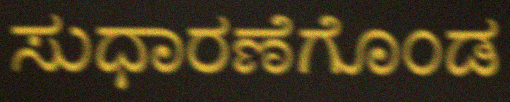
ಸುಧಾರಣೆಗೊಂಡ